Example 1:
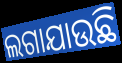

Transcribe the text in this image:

ଲଗାଯାଉଛି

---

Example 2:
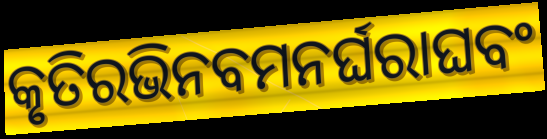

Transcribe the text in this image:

କୃତିରଭିନବମନର୍ଘରାଘବଂ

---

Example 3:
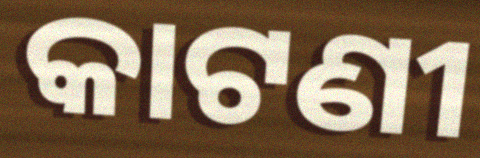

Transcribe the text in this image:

କାଟଣୀ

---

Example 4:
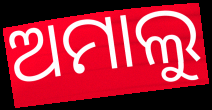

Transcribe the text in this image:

ଅମାଲୁ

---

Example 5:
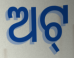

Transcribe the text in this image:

ଅଟ୍